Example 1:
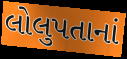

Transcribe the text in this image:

લોલુપતાનાં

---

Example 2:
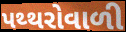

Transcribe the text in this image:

પથ્થરોવાળી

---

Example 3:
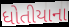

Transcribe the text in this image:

ધોતીયાના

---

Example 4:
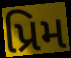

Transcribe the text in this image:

પ્રિમ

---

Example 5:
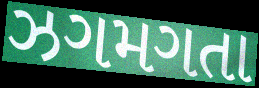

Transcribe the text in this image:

ઝગમગતા